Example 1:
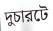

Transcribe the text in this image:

দুচারটে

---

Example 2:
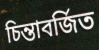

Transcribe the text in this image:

চিন্তাবর্জিত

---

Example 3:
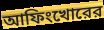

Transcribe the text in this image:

আফিংখোরের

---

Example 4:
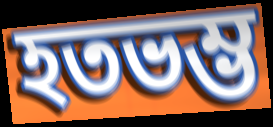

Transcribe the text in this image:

হতভম্ভ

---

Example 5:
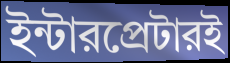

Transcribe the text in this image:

ইন্টারপ্রেটারই